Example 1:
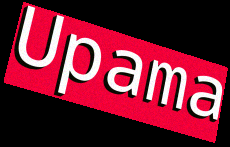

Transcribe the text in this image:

Upama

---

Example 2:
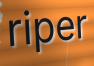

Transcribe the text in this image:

riper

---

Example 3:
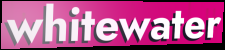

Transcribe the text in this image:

whitewater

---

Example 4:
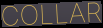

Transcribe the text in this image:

COLLAR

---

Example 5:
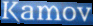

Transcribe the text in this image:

Kamov